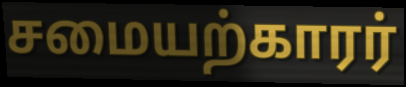
சமையற்காரர்